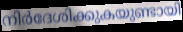
നിർദേശിക്കുകയുണ്ടായി